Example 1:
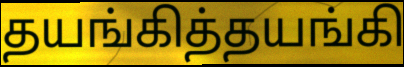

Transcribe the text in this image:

தயங்கித்தயங்கி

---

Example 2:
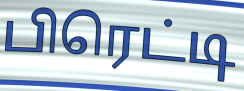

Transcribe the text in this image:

பிரெட்டி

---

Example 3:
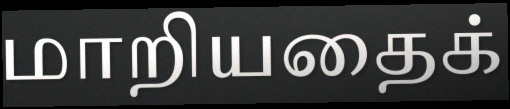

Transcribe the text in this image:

மாறியதைக்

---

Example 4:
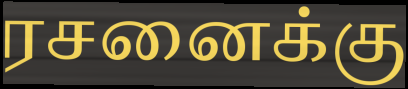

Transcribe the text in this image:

ரசனைக்கு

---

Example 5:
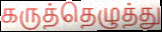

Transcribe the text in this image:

கருத்தெழுத்து